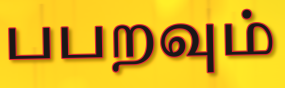
பபறவும்